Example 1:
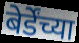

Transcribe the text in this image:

बेर्डेंच्या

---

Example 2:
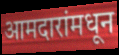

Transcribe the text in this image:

आमदारांमधून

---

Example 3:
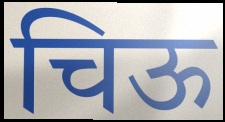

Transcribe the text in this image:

चिऊ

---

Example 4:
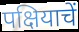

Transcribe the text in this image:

पक्षियाचें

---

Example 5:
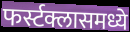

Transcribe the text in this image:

फर्स्टक्लासमध्ये